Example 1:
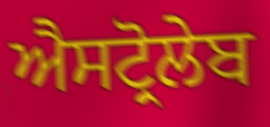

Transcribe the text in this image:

ਐਸਟ੍ਰੋਲੇਬ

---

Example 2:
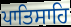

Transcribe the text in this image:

ਪਾਤਿਸਾਹਿ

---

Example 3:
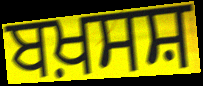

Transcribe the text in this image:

ਬਖ਼ਸਸ਼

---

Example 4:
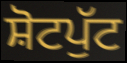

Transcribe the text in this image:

ਸ਼ੋਟਪੁੱਟ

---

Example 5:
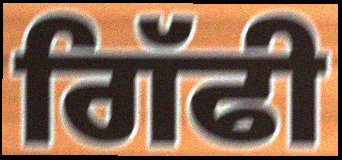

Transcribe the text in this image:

ਗਿੱਫੀ